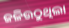
ଜଳିଉଠୁଥିଲା